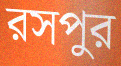
রসপুর